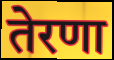
तेरणा